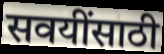
सवयींसाठी